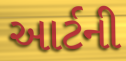
આર્ટની